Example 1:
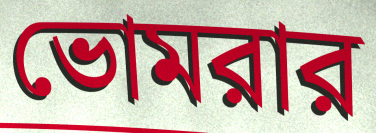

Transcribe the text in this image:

ভোমরার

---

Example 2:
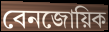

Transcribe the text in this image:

বেনজোয়িক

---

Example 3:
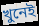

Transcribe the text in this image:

খুনেই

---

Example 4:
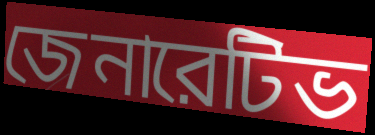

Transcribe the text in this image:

জেনারেটিভ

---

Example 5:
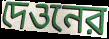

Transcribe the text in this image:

দেওনের